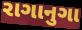
રાગાનુગા